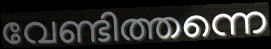
വേണ്ടിത്തന്നെ